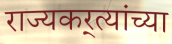
राज्यकर्त्यांच्या